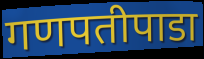
गणपतीपाडा